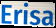
Erisa